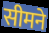
सीमने